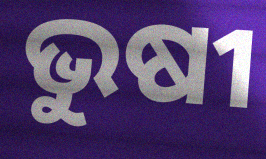
ଭୁଷୀ